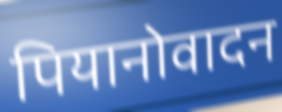
पियानोवादन